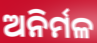
ଅନିର୍ମଳ